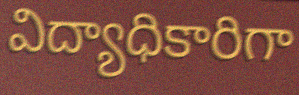
విద్యాధికారిగా